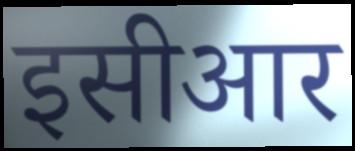
इसीआर